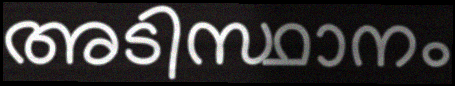
അടിസ്ഥാനം